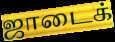
ஜாடைக்